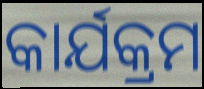
କାର୍ଯକ୍ରମ